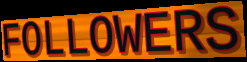
FOLLOWERS